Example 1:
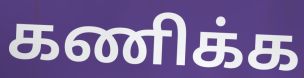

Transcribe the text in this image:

கணிக்க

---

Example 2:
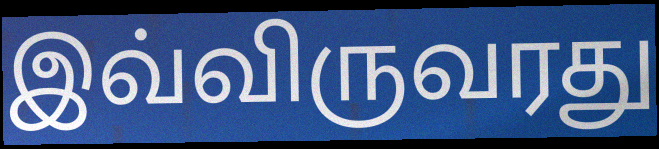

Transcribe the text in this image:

இவ்விருவரது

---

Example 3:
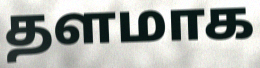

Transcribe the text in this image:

தளமாக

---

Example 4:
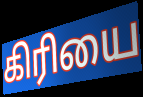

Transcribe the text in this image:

கிரியை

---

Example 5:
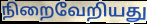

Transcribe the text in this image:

நிறைவேறியது